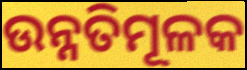
ଉନ୍ନତିମୂଳକ